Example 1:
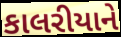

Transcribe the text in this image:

કાલરીયાને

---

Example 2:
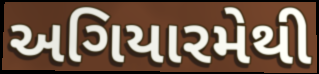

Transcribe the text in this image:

અગિયારમેથી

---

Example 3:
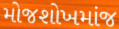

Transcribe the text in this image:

મોજશોખમાંજ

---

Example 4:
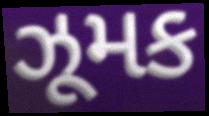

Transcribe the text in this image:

ઝૂમક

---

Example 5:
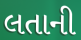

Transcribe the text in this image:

લતાની